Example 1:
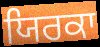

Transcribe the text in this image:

ਯਿਰਕਾ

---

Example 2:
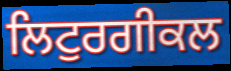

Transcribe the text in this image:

ਲਿਟੁਰਗੀਕਲ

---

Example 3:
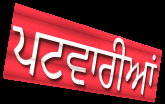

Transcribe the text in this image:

ਪਟਵਾਰੀਆਂ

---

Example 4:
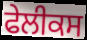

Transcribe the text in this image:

ਫੇਲੀਕਸ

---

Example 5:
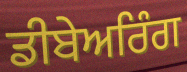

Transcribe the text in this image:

ਡੀਬੇਅਰਿੰਗ